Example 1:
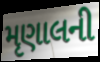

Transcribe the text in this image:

મૃણાલની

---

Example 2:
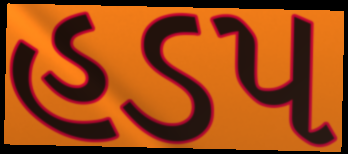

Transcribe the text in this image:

હડપ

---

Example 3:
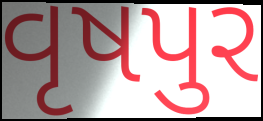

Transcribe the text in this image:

વૃષપુર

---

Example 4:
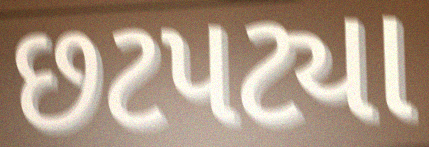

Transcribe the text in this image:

છટપટ્યા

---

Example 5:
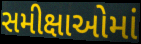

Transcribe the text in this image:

સમીક્ષાઓમાં